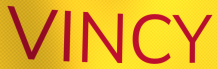
VINCY